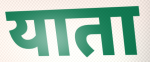
याता